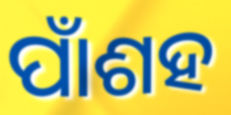
ପାଁଶହ